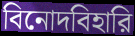
বিনোদবিহারি